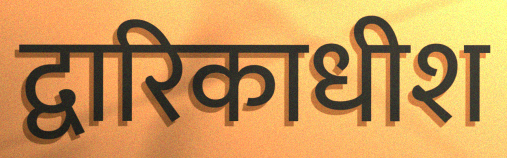
द्वारिकाधीश